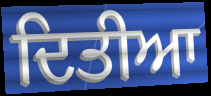
ਦਿਤੀਆ